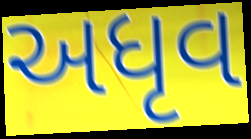
અધૃવ